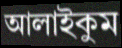
আলাইকুম